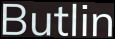
Butlin